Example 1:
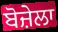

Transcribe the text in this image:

ਬੋਜ਼ੇਲਾ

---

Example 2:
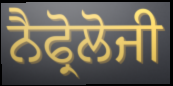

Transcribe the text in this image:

ਨੈਫ੍ਰੋਲੋਜੀ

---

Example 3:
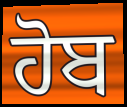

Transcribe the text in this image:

ਹੋਬ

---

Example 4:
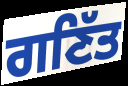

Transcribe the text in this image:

ਗਣਿੱਤ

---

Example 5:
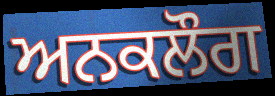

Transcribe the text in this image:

ਅਨਕਲੌਗ